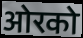
ओरको